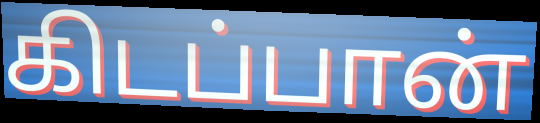
கிடப்பான்